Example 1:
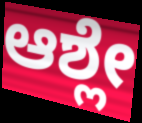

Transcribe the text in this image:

ಆಶ್ಲೇ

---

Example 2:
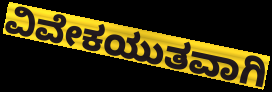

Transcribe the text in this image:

ವಿವೇಕಯುತವಾಗಿ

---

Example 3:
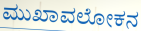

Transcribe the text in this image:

ಮುಖಾವಲೋಕನ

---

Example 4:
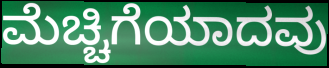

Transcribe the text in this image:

ಮೆಚ್ಚಿಗೆಯಾದವು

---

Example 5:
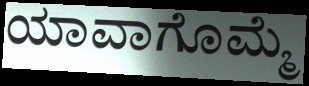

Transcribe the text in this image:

ಯಾವಾಗೊಮ್ಮೆ